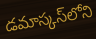
డమాస్కస్‌లోని